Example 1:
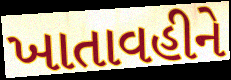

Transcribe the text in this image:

ખાતાવહીને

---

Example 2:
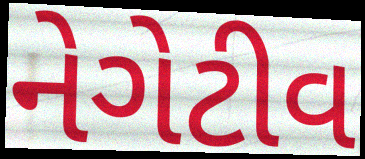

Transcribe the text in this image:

નેગેટીવ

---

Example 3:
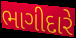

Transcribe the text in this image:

ભાગીદારે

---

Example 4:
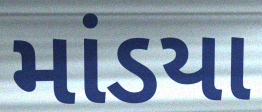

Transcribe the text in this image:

માંડયા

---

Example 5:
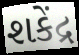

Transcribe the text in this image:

શકેંદ્ર